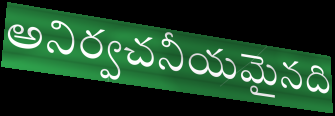
అనిర్వచనీయమైనది